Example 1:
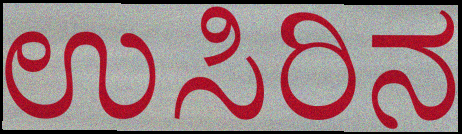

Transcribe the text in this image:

ಉಸಿರಿನ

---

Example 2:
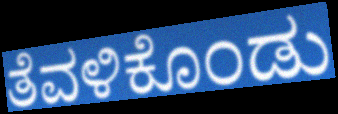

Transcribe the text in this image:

ತೆವಳಿಕೊಂಡು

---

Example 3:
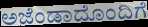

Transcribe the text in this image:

ಅಜೆಂಡಾದೊಂದಿಗೆ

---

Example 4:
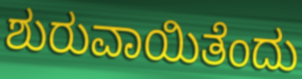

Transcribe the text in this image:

ಶುರುವಾಯಿತೆಂದು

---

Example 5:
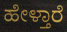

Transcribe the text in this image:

ಹೇಳ್ತಾರೆ